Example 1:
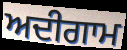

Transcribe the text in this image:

ਅਦੀਗਾਮ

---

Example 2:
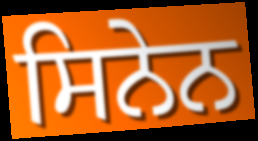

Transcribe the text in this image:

ਸਿਨੇਨ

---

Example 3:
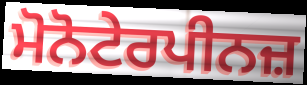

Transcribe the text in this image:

ਮੋਨੋਟੇਰਪੀਨਜ਼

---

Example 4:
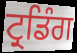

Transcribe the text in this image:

ਟ੍ਰਡਿੰਗ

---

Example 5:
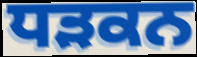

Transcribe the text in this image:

ਧੜਕਨ